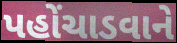
પહોંચાડવાને